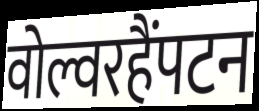
वोल्वरहैंपटन